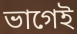
ভাগেই